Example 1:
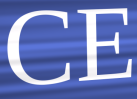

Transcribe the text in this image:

CE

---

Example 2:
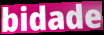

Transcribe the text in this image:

bidade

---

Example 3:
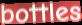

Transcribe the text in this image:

bottles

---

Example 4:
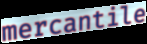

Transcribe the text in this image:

mercantile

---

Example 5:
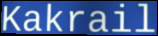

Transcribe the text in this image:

Kakrail